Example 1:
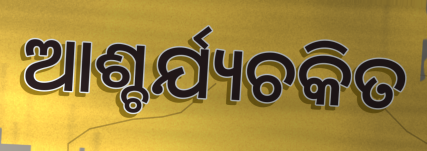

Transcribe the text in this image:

ଆଶ୍ଚର୍ଯ୍ୟଚକିତ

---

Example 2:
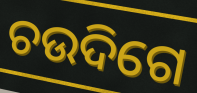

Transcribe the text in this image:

ଚଉଦିଗେ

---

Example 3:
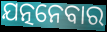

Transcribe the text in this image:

ଯତ୍ନନେବାର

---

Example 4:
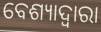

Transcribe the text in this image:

ବେଶ୍ୟାଦ୍ୱାରା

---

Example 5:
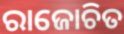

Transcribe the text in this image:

ରାଜୋଚିତ